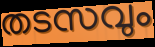
തടസവും